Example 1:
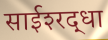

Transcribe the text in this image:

साईश्रद्धा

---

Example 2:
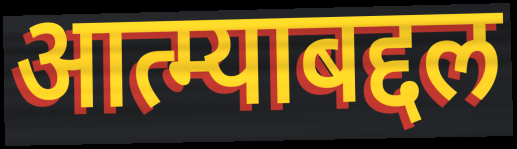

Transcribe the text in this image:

आत्म्याबद्दल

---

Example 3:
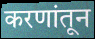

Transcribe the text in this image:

करणांतून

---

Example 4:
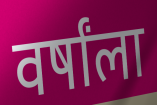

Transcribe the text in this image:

वर्षांला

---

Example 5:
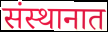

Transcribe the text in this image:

संस्थानात